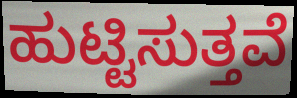
ಹುಟ್ಟಿಸುತ್ತವೆ